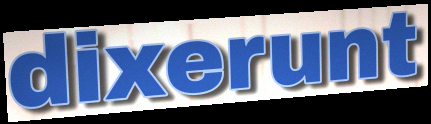
dixerunt